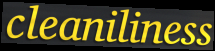
cleaniliness